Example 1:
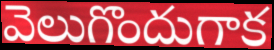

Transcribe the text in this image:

వెలుగొందుగాక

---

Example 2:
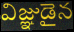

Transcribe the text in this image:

విజ్ఞుడైన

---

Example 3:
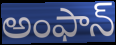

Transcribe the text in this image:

అంఫాన్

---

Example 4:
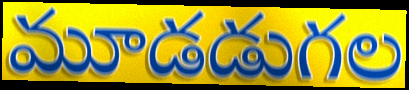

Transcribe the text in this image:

మూడడుగల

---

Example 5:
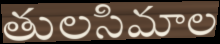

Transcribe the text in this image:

తులసిమాల